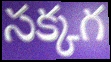
సక్కగ